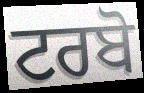
ਟਰਬੋ